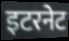
इटरनेट